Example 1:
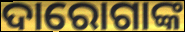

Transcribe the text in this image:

ଦାରୋଗାଙ୍କ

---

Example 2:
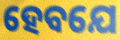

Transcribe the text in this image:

ହେବଯେ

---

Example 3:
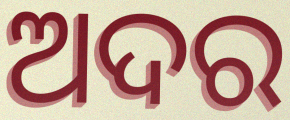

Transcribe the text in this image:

ଅଦର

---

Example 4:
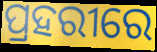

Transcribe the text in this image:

ପ୍ରହରୀରେ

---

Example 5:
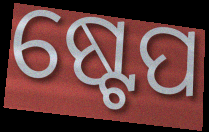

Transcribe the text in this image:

ଷ୍ଟେପ